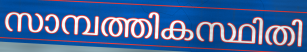
സാമ്പത്തികസ്ഥിതി